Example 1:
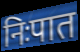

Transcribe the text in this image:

निःपात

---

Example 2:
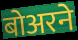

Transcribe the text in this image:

बोअरने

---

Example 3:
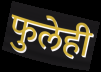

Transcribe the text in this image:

फुलेही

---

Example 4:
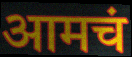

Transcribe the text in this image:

आमचं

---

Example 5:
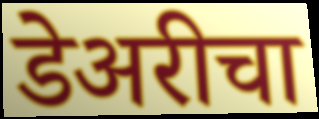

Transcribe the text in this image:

डेअरीचा